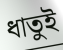
ধাতুই